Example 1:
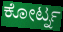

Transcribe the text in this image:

ಕೋರ್ಟ್ನ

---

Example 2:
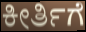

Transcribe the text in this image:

ಕೀರ್ತಿಗೆ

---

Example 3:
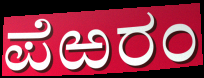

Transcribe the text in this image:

ಪೆಱರಂ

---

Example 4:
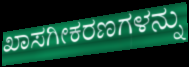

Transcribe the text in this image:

ಖಾಸಗೀಕರಣಗಳನ್ನು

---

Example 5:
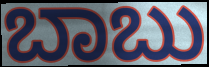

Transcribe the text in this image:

ಬಾಬು